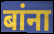
बांना